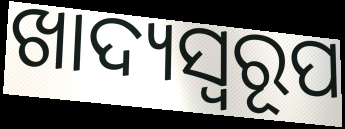
ଖାଦ୍ୟସ୍ୱରୂପ